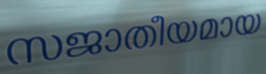
സജാതീയമായ